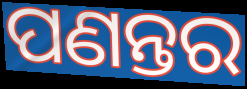
ପଣନ୍ତର